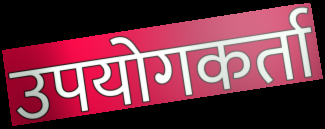
उपयोगकर्ता